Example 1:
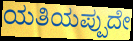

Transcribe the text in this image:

ಯತಿಯಪ್ಪುದೇ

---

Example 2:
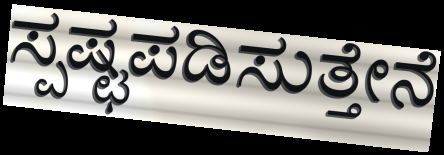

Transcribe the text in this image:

ಸ್ಪಷ್ಟಪಡಿಸುತ್ತೇನೆ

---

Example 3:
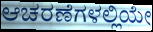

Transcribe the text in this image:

ಆಚರಣೆಗಳಲ್ಲಿಯೇ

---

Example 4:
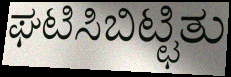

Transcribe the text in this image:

ಘಟಿಸಿಬಿಟ್ಟಿತು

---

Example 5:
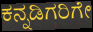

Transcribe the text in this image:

ಕನ್ನಡಿಗರಿಗೇ